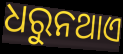
ଧରୁନଥାଏ